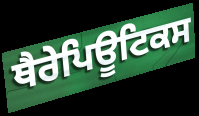
ਥੈਰੇਪਿਊਟਿਕਸ